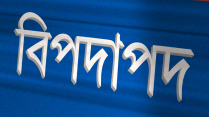
বিপদাপদ